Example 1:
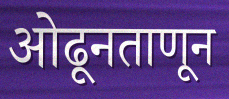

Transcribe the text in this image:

ओढूनताणून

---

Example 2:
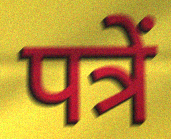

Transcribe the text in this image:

पत्रें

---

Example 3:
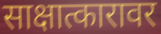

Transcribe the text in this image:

साक्षात्कारावर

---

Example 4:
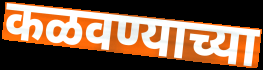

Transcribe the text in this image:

कळवण्याच्या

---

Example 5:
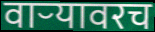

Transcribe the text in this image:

वाऱ्यावरच